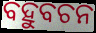
ବହୁବଚନ